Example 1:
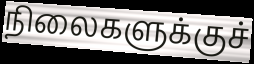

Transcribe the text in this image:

நிலைகளுக்குச்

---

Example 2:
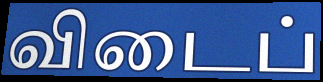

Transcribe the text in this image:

விடைப்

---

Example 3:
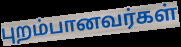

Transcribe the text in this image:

புறம்பானவர்கள்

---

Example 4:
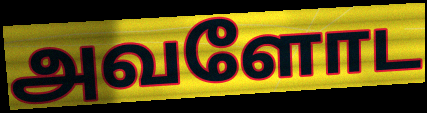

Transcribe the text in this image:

அவளோட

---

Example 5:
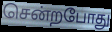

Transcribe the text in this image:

சென்றபோது